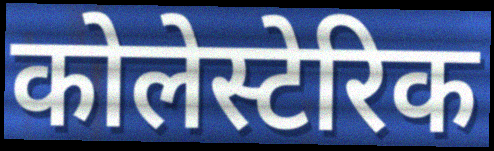
कोलेस्टेरिक